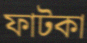
ফাটকা